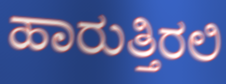
ಹಾರುತ್ತಿರಲಿ